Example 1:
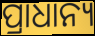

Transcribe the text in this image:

ପ୍ରାଧାନ୍ୟ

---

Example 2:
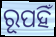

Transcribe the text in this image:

ରୂପହିଁ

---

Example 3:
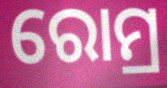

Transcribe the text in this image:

ରୋମ୍ର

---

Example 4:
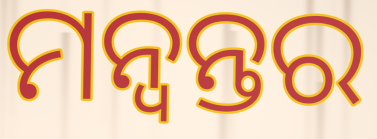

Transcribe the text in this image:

ମନ୍ୱନ୍ତର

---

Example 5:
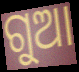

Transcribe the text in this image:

ଗୁଆ